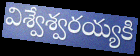
విశ్వేశ్వరయ్యకి